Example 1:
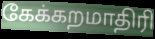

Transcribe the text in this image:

கேக்கறமாதிரி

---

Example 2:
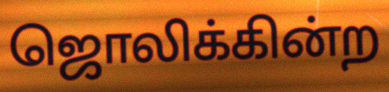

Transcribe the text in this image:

ஜொலிக்கின்ற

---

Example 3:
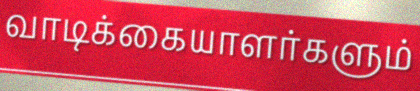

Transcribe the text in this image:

வாடிக்கையாளர்களும்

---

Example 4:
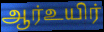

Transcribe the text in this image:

ஆர்உயிர்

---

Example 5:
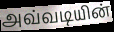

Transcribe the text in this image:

அவ்வடியின்